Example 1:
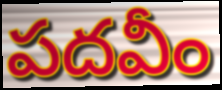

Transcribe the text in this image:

పదవీం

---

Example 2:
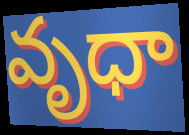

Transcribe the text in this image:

వృధా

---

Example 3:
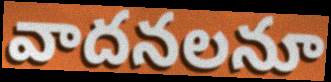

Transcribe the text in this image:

వాదనలనూ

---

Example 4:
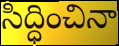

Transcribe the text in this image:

సిద్ధించినా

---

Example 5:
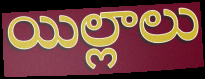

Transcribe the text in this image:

యిల్లాలు